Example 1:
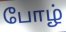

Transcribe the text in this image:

போழ்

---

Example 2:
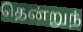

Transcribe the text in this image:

தென்றுந்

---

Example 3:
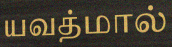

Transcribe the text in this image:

யவத்மால்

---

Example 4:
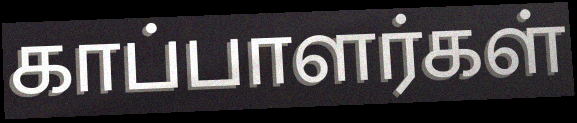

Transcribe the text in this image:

காப்பாளர்கள்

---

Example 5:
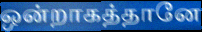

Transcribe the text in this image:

ஒன்றாகத்தானே